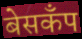
बेसकँप